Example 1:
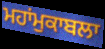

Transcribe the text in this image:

ਮਹਾਂਮੁਕਾਬਲਾ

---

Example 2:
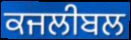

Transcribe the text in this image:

ਕਜਲੀਬਲ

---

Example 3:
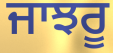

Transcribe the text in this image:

ਜਾਝਰੂ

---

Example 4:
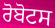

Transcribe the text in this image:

ਰੋਬੋਟਸ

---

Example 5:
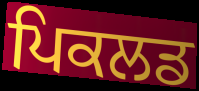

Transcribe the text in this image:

ਪਿਕਲਡ